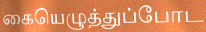
கையெழுத்துப்போட